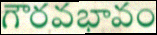
గౌరవభావం